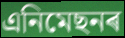
এনিমেছনৰ